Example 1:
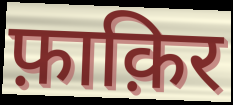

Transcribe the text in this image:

फ़ाक़िर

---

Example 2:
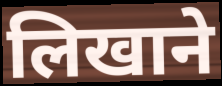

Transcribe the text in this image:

लिखाने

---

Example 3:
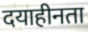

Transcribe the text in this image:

दयाहीनता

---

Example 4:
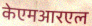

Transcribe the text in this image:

केएमआरएल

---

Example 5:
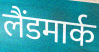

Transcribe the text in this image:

लैंडमार्क